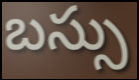
బస్సు